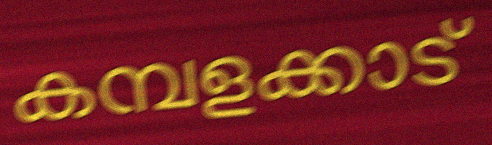
കമ്പളക്കാട്